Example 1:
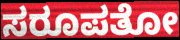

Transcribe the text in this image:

ಸರೂಪತೋ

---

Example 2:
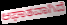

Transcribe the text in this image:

ಆಘಾತವಾಗಿದೆ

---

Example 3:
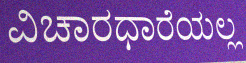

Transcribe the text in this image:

ವಿಚಾರಧಾರೆಯಲ್ಲ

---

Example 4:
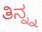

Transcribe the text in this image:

ತಿನ್ನ್ನ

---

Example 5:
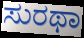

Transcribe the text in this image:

ಸುರಥಾ